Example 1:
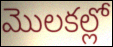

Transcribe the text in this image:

మొలకల్లో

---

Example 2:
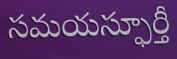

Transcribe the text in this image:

సమయస్ఫూర్తీ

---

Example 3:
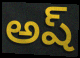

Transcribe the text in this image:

అష్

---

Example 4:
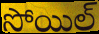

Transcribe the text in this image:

సోయిల్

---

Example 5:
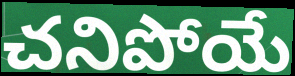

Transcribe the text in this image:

చనిపోయే